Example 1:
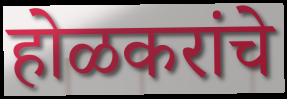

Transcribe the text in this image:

होळकरांचे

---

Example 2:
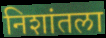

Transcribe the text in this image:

निशांतला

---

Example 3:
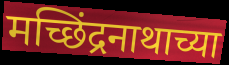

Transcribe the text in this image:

मच्छिंद्रनाथाच्या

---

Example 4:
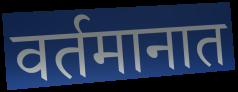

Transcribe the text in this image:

वर्तमानात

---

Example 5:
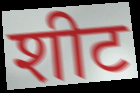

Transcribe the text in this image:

शीट